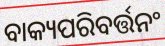
ବାକ୍ୟପରିବର୍ତ୍ତନଂ